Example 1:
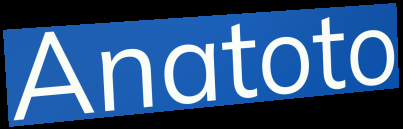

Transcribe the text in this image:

Anatoto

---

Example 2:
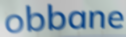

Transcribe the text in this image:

obbane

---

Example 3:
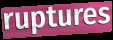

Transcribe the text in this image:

ruptures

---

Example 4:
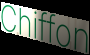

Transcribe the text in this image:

Chiffon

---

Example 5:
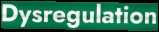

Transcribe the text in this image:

Dysregulation